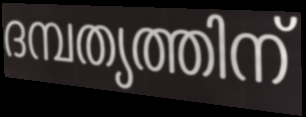
ദമ്പത്യത്തിന്